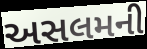
અસલમની